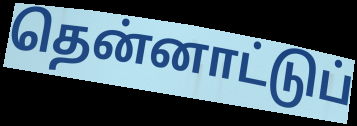
தென்னாட்டுப்